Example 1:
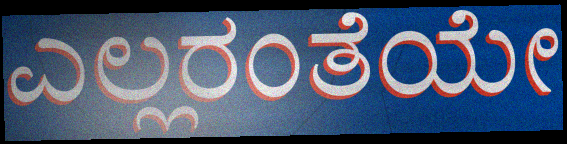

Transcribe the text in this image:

ಎಲ್ಲರಂತೆಯೇ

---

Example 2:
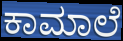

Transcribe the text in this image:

ಕಾಮಾಲೆ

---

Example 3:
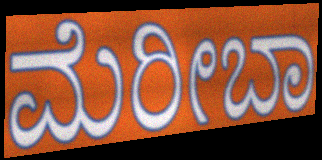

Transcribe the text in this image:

ಮೆರೀಬಾ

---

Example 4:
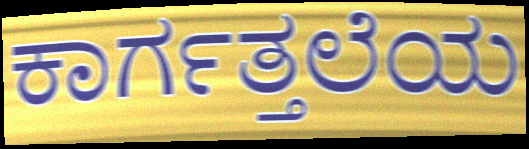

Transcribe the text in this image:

ಕಾರ್ಗತ್ತಲೆಯ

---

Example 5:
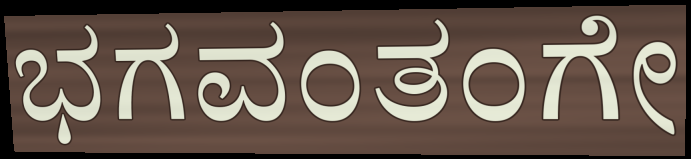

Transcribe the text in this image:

ಭಗವಂತಂಗೇ